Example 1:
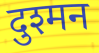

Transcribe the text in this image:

दुश्मन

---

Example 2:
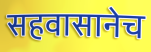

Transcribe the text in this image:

सहवासानेच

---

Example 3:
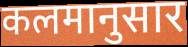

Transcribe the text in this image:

कलमानुसार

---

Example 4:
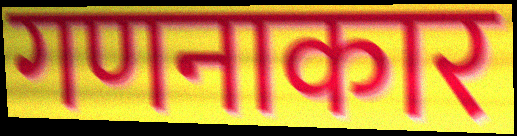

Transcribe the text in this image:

गणनाकार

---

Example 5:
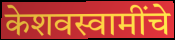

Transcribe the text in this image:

केशवस्वामींचे